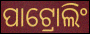
ପାଟ୍ରୋଲିଂ